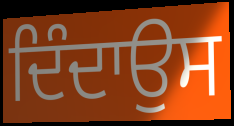
ਦਿੰਦਾਉਸ